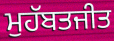
ਮੁਹੱਬਤਜੀਤ